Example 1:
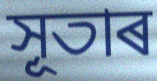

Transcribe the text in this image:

সূতাৰ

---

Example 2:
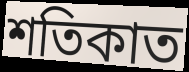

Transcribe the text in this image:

শতিকাত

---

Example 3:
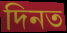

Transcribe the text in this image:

দিনত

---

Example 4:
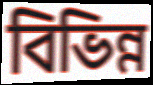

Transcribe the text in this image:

বিভিন্ন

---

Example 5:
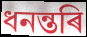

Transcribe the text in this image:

ধনন্তৰি